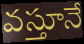
వస్తూనే